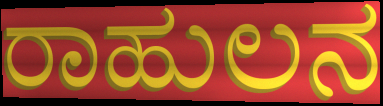
ರಾಹುಲನ